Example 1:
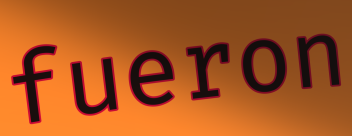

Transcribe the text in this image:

fueron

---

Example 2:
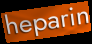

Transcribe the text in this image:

heparin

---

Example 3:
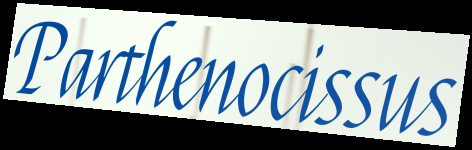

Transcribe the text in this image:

Parthenocissus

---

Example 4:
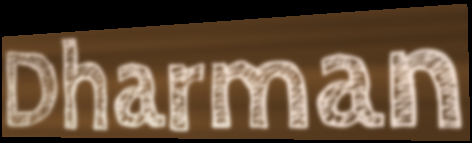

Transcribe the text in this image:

Dharman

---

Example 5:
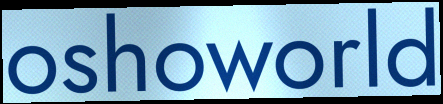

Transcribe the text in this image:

oshoworld